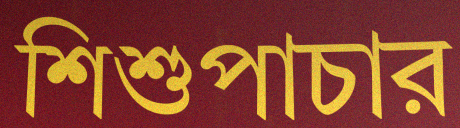
শিশুপাচার